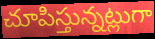
చూపిస్తున్నట్లుగా